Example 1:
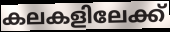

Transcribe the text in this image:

കലകളിലേക്ക്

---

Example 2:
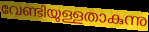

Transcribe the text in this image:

വേണ്ടിയുള്ളതാകുന്നു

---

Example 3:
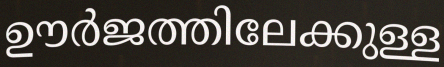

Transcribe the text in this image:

ഊർജത്തിലേക്കുള്ള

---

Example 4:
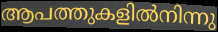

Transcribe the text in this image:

ആപത്തുകളിൽനിന്നു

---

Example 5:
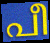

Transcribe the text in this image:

പീ